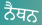
ਨੈਥਨ